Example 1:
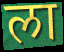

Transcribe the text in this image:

ला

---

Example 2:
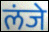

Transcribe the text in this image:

लंजे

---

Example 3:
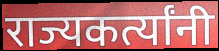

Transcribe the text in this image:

राज्यकर्त्यांनी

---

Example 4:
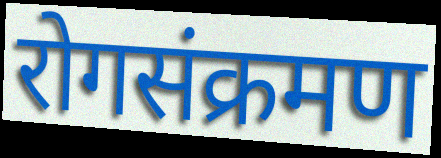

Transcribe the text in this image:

रोगसंक्रमण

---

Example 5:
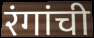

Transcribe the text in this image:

रंगांची